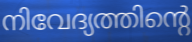
നിവേദ്യത്തിന്റെ